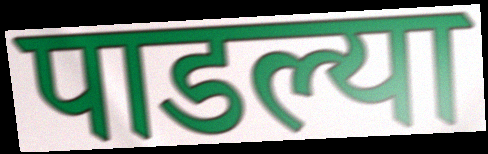
पाडल्या